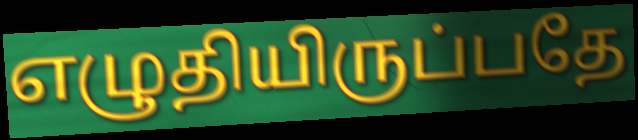
எழுதியிருப்பதே